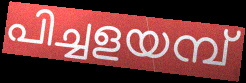
പിച്ചളയമ്പ്